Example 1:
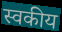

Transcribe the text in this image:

स्वकीय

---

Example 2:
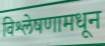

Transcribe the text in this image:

विश्लेषणामधून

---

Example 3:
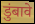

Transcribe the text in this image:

डुंबावे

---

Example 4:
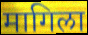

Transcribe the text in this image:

मागिला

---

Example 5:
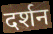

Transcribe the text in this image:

दर्शन